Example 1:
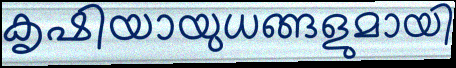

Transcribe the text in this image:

കൃഷിയായുധങ്ങളുമായി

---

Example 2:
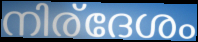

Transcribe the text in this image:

നിര്ദേശം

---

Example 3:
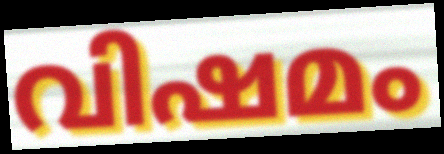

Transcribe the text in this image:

വിഷമം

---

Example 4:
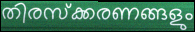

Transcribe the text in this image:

തിരസ്ക്കരണങ്ങളും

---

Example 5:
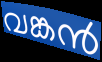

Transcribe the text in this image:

വങ്കൻ